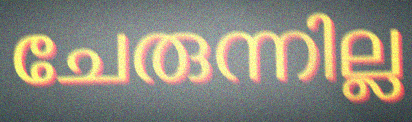
ചേരുന്നില്ല